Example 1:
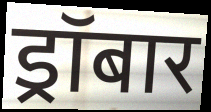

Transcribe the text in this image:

ड्रॉबार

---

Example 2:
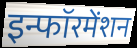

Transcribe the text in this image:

इन्फॉरमेंशन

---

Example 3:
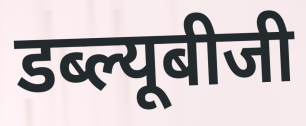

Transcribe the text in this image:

डब्ल्यूबीजी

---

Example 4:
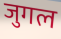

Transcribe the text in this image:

जुगल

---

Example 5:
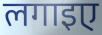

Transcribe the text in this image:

लगाइए